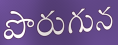
పొరుగున